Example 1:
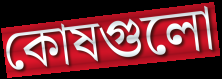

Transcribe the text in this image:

কোষগুলো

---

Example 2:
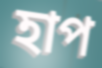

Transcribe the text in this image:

হাপ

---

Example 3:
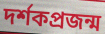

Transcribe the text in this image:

দর্শকপ্রজন্ম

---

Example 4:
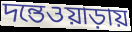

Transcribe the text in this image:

দন্তেওয়াড়ায়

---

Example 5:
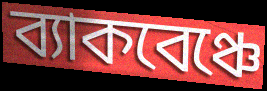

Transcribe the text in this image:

ব্যাকবেঞ্চে